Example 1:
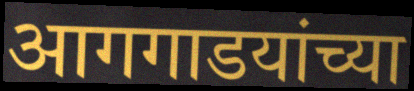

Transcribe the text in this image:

आगगाडयांच्या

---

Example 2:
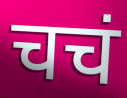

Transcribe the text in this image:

चचं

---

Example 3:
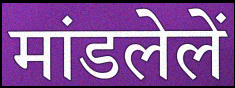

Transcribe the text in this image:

मांडलेलें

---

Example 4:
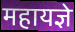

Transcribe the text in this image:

महायज्ञे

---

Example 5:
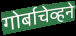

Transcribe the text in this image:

गोर्बाचेव्हने